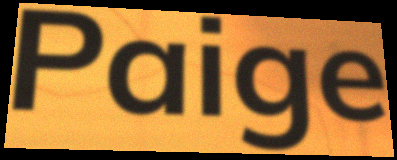
Paige